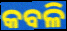
କବଳି